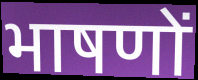
भाषणों